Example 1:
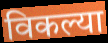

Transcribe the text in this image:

विकल्या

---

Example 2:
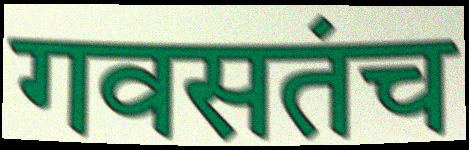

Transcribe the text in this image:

गवसतंच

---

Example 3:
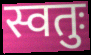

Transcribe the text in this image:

स्वतुः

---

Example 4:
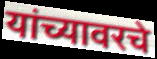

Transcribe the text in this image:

यांच्यावरचे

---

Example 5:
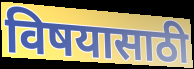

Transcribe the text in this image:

विषयासाठी